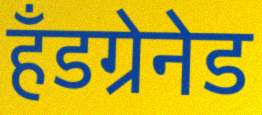
हँडग्रेनेड